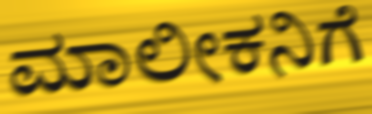
ಮಾಲೀಕನಿಗೆ